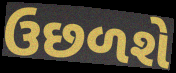
ઉછળશે